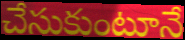
చేసుకుంటూనే